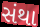
સંથા